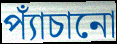
প্যাঁচানো